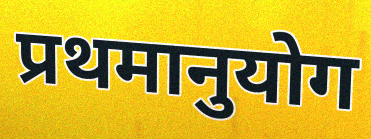
प्रथमानुयोग